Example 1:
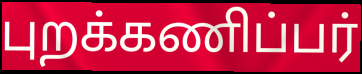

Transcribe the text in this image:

புறக்கணிப்பர்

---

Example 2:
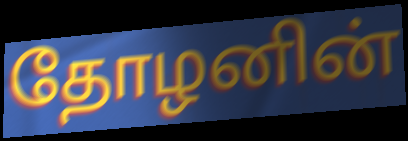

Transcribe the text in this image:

தோழனின்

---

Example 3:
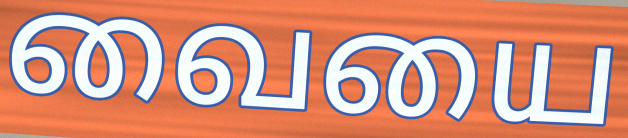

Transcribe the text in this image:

வையை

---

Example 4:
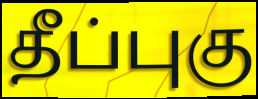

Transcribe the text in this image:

தீப்புகு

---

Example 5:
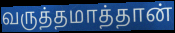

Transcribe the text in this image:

வருத்தமாத்தான்